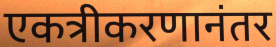
एकत्रीकरणानंतर